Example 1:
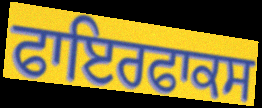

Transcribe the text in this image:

ਫਾਇਰਫਾਕਸ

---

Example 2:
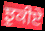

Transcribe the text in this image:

ਝੁਕੀਏ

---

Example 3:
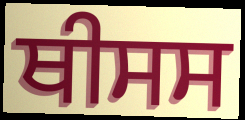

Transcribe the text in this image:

ਥੀਸਸ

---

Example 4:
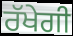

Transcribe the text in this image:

ਰੱਖੇਗੀ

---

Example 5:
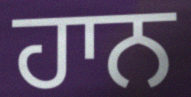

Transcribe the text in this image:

ਹਾਨ